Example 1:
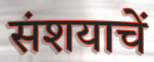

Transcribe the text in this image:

संशयाचें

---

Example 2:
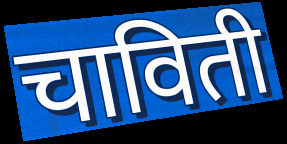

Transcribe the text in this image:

चाविती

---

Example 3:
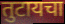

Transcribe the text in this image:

तुटायचा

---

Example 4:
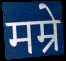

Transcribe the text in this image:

मम्रे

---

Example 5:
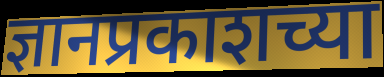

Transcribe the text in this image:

ज्ञानप्रकाशच्या